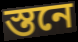
স্তনে